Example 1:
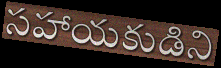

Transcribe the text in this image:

సహాయకుడిని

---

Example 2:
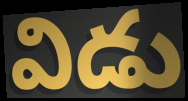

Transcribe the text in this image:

విడు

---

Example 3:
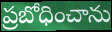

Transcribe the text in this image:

ప్రబోధించాను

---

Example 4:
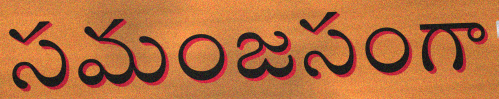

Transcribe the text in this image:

సమంజసంగా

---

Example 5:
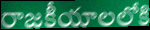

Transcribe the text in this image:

రాజకీయాలలోకి